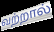
வற்றால்